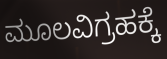
ಮೂಲವಿಗ್ರಹಕ್ಕೆ